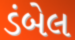
ડંબેલ